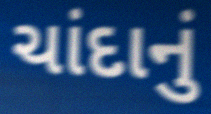
ચાંદાનું